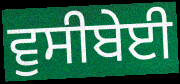
ਵੁਸੀਬੇਈ